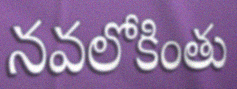
నవలోకింతు